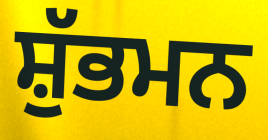
ਸ਼ੁੱਭਮਨ